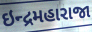
ઇન્દ્રમહારાજા